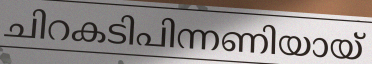
ചിറകടിപിന്നണിയായ്